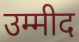
उम्मीद